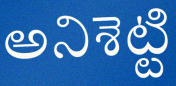
అనిశెట్టి